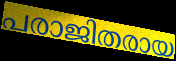
പരാജിതരായ